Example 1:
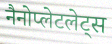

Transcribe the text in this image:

नैनोप्लेटलेट्स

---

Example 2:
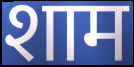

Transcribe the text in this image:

शाम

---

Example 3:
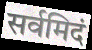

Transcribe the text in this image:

सर्वमिदं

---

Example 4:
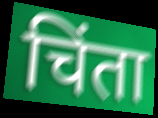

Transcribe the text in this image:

चिंता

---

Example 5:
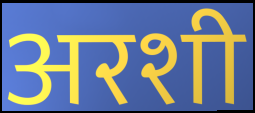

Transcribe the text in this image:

अरशी